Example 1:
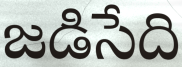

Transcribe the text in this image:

జడిసేది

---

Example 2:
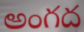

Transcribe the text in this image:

అంగద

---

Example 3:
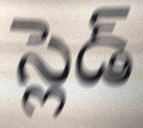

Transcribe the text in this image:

స్లెడ్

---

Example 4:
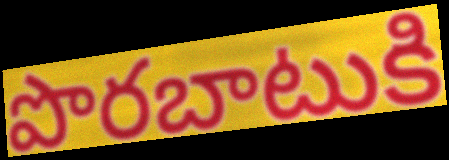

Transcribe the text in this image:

పొరబాటుకి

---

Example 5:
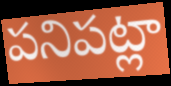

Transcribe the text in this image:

పనిపట్లా